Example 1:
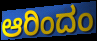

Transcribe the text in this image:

ಆರಿಂದಂ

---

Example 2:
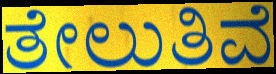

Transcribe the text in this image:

ತೇಲುತಿವೆ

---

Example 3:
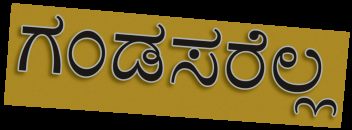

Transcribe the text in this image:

ಗಂಡಸರೆಲ್ಲ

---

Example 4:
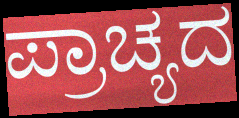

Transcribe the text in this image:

ಪ್ರಾಚ್ಯದ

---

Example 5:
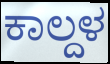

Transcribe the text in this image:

ಕಾಲ್ದಳ